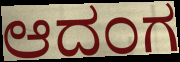
ಆದಂಗ